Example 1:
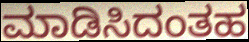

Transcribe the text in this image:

ಮಾಡಿಸಿದಂತಹ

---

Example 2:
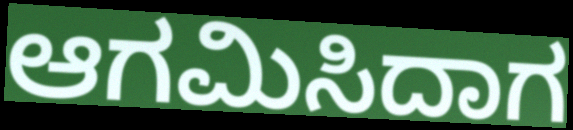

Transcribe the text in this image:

ಆಗಮಿಸಿದಾಗ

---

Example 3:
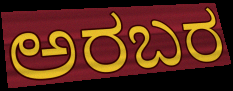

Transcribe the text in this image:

ಅರಬರ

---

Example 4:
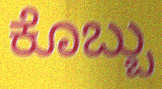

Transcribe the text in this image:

ಕೊಬ್ಬು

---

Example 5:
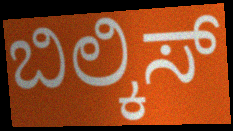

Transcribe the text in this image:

ಬಿಲ್ಕಿಸ್